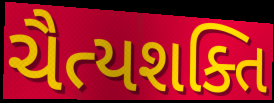
ચૈત્યશક્તિ